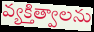
వ్యక్తిత్వాలను